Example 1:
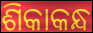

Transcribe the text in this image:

ଶିକାକନ୍ଧ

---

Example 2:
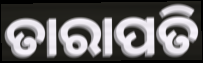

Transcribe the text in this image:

ତାରାପତି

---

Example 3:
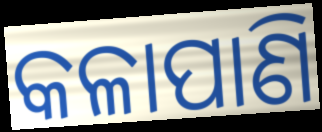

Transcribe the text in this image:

କଳାପାଣି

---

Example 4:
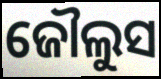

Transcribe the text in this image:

ଜୌଲୁସ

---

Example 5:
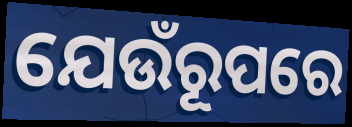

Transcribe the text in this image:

ଯେଉଁରୂପରେ